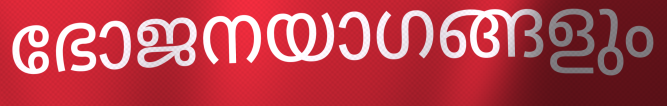
ഭോജനയാഗങ്ങളും